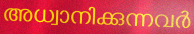
അധ്വാനിക്കുന്നവർ